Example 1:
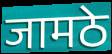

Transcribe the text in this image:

जामठे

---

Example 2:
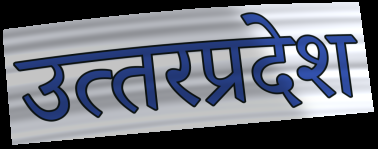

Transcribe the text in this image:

उत्‍तरप्रदेश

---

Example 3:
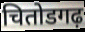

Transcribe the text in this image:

चितोडगढ़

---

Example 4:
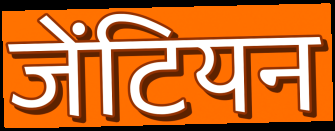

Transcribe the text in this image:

जेंटियन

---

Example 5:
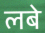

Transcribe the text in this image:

लबे